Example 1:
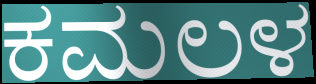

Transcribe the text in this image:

ಕಮಲಳ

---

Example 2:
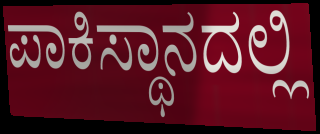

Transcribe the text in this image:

ಪಾಕಿಸ್ಥಾನದಲ್ಲಿ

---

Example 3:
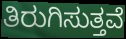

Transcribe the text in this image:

ತಿರುಗಿಸುತ್ತವೆ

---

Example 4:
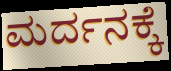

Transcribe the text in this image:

ಮರ್ದನಕ್ಕೆ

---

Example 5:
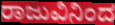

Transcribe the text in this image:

ರಾಜುವಿನಿಂದ